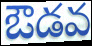
ఔడవ